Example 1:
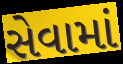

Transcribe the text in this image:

સેવામાં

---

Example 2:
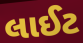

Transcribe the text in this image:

લાઈટ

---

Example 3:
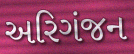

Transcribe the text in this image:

અરિગંજન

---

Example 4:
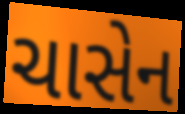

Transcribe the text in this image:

ચાસેન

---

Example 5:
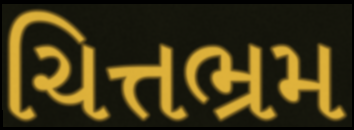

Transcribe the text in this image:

ચિત્તભ્રમ